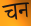
चन